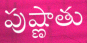
పుష్ణాతు